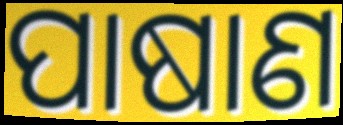
ପାଷାଣ